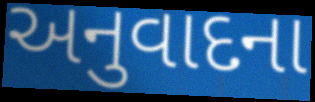
અનુવાદના